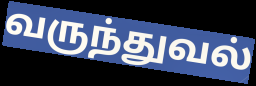
வருந்துவல்